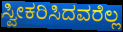
ಸ್ವೀಕರಿಸಿದವರೆಲ್ಲ